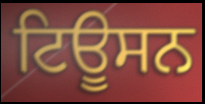
ਟਿਊਸਨ